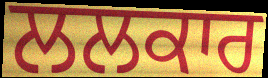
ਲਲਕਾਰ